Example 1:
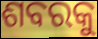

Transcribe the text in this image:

ଶବରକୁ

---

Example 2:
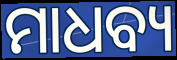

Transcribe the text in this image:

ମାଧବ୍ୟ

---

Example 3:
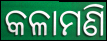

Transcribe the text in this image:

କଳାମଣି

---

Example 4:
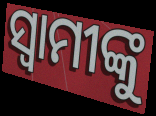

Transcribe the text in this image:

ସ୍ୱାମୀଙ୍କୁ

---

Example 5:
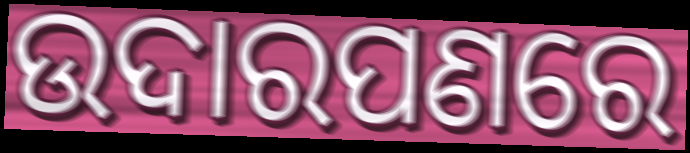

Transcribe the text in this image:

ଉଦାରପଣରେ